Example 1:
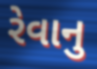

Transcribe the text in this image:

રેવાનુ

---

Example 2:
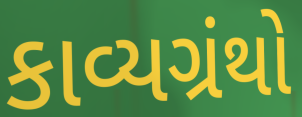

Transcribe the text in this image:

કાવ્યગ્રંથો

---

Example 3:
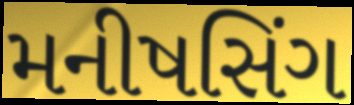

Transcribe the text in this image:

મનીષસિંગ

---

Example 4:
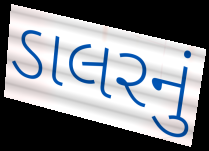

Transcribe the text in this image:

ડાલરનું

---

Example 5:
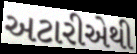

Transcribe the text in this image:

અટારીએથી